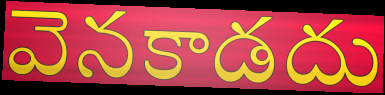
వెనకాడదు